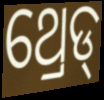
ଥ୍ରେଡ୍